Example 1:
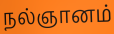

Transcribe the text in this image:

நல்ஞானம்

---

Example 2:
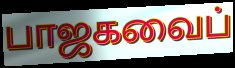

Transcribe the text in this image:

பாஜகவைப்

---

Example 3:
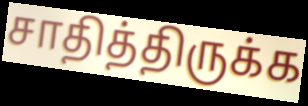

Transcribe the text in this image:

சாதித்திருக்க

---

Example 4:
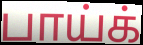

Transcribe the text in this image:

பாய்க்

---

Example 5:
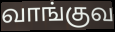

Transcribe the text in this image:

வாங்குவ